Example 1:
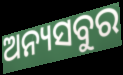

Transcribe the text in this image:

ଅନ୍ୟସବୁର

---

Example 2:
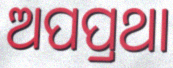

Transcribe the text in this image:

ଅପପ୍ରଥା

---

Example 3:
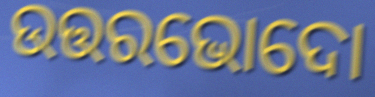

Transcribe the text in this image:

ଉତ୍ତରଭୋଦୋ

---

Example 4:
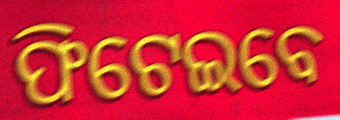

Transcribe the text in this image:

ଫିଟେଇବେ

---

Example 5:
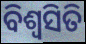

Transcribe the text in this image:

ବିଶ୍ଵସିତି